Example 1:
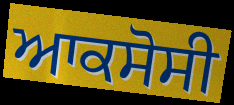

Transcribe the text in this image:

ਆਕਸੋਸੀ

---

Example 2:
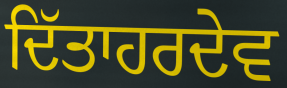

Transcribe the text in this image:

ਦਿੱਤਾਹਰਦੇਵ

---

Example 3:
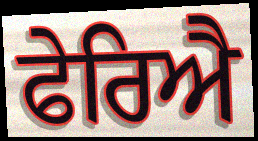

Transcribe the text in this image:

ਫੇਰਿਐ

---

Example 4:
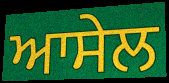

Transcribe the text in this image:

ਆਸੇਲ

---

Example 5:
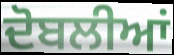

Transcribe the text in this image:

ਦੋਬਲੀਆਂ